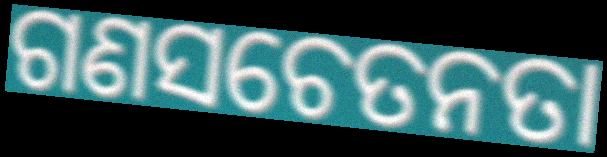
ଗଣସଚେତନତା